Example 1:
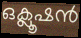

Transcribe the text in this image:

ഒക്ലൂഷൻ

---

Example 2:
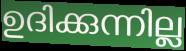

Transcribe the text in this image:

ഉദിക്കുന്നില്ല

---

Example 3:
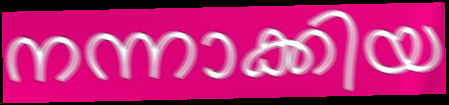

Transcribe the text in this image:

നന്നാക്കിയ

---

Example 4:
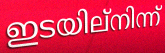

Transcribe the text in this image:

ഇടയില്നിന്ന്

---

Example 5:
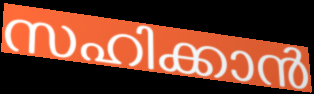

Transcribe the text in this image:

സഹിക്കാൻ